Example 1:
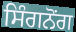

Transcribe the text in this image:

ਸਿੰਗਨੋਂਗ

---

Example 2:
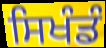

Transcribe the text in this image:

ਸਿਖੰਡੰ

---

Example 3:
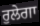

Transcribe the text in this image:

ਰੁਲੇਗਾ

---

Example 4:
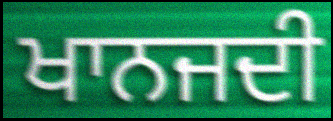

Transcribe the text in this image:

ਖਾਨਜਦੀ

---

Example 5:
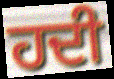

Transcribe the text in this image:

ਹਦੀ